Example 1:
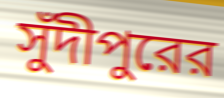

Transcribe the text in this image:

সুঁদীপুরের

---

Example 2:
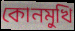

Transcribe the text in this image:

কোনমুখি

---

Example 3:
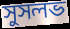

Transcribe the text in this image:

সুসলভ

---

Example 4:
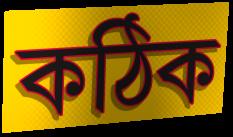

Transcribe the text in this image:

কঠিক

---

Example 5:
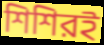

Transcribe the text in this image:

শিশিরই